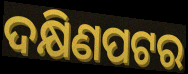
ଦକ୍ଷିଣପଟର